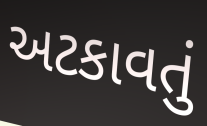
અટકાવતું